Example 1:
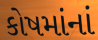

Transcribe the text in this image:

કોષમાંનાં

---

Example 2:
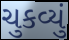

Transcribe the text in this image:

ચુકવ્યું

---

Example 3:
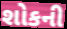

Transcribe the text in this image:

શોકની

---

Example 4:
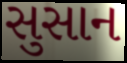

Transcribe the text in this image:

સુસાન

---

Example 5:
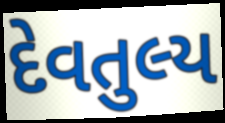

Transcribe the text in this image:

દેવતુલ્ય